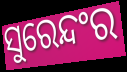
ସୁରେନ୍ଦଂର